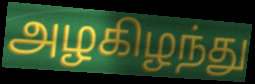
அழகிழந்து